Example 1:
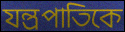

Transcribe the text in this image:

যন্ত্রপাতিকে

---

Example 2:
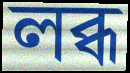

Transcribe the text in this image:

লব্ধ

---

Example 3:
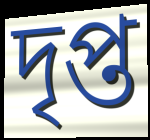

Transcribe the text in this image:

দৃপ্ত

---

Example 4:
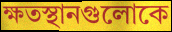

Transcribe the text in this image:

ক্ষতস্থানগুলোকে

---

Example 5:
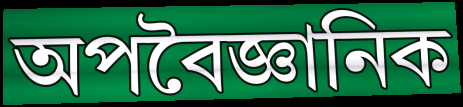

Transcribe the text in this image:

অপবৈজ্ঞানিক